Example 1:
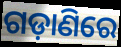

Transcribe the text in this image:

ଗଡ଼ାଣିରେ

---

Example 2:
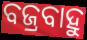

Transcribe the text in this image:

ବଜ୍ରବାହୁ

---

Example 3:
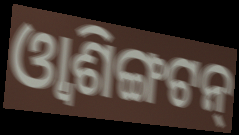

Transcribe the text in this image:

ଓ୍ୱାଶିଙ୍ଗଟନ୍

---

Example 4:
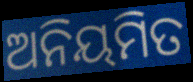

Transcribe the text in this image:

ଅନିୟମିତ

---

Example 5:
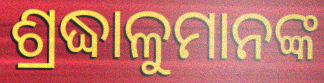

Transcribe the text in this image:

ଶ୍ରଦ୍ଧାଳୁମାନଙ୍କ